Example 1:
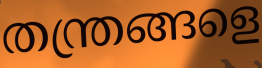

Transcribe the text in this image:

തന്ത്രങ്ങളെ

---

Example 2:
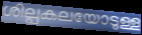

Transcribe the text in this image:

ശില്പകലയോടുള്ള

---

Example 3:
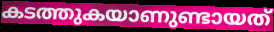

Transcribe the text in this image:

കടത്തുകയാണുണ്ടായത്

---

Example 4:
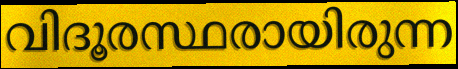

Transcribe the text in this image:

വിദൂരസ്ഥരായിരുന്ന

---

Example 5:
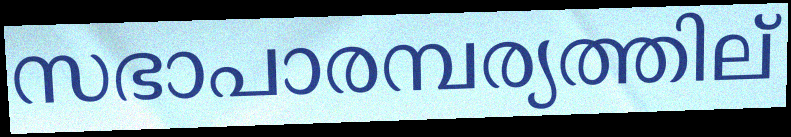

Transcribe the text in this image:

സഭാപാരമ്പര്യത്തില്